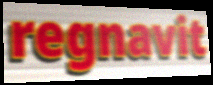
regnavit